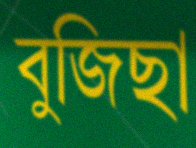
বুজিছা